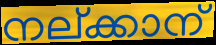
നല്ക്കാന്